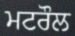
ਮਟਰੌਲ